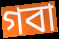
গবা